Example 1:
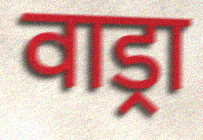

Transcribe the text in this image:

वाड्रा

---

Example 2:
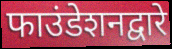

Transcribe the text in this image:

फाउंडेशनद्वारे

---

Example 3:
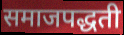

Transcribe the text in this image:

समाजपद्धती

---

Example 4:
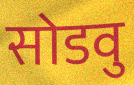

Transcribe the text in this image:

सोडवु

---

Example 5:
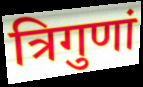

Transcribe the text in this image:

त्रिगुणां